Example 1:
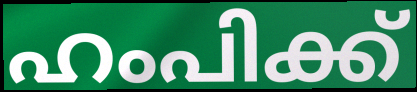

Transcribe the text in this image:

ഹംപിക്ക്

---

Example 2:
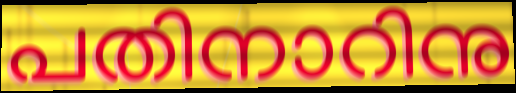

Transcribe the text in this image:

പതിനാറിനു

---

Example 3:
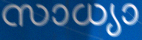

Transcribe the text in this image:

സാധ്യാ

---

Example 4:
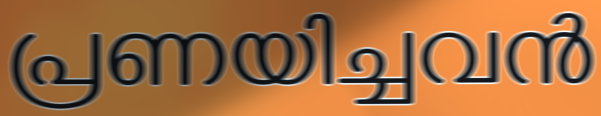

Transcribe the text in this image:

പ്രണയിച്ചവൻ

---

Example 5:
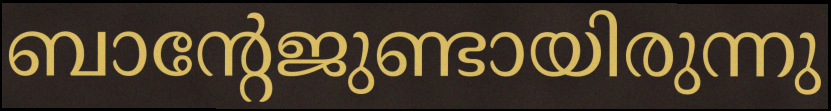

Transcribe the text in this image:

ബാന്റേജുണ്ടായിരുന്നു